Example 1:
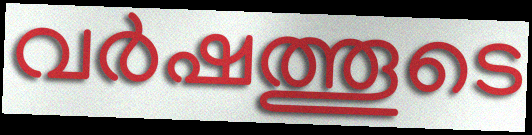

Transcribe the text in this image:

വർഷത്തൂടെ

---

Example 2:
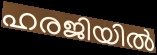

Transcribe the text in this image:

ഹരജിയിൽ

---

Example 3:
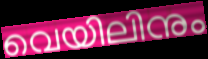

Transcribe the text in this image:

വെയിലിനും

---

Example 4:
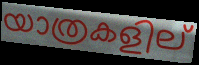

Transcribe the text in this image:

യാത്രകളില്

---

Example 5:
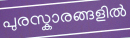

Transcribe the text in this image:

പുരസ്കാരങ്ങളിൽ